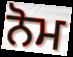
ਨੋਮ